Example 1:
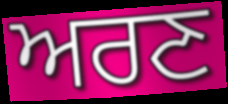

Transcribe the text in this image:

ਅਰਣ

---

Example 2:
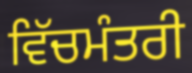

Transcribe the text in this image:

ਵਿੱਚਮੰਤਰੀ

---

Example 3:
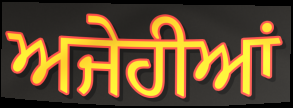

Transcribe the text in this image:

ਅਜੇਹੀਆਂ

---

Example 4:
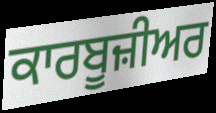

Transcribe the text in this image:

ਕਾਰਬੂਜ਼ੀਅਰ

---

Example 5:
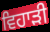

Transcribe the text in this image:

ਵਿਹਾੜੀ